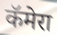
कॅमेरा